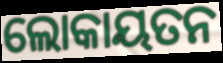
ଲୋକାୟତନ